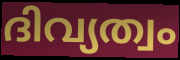
ദിവ്യത്വം